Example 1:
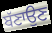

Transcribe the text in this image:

ਬੱਣਾਉਣ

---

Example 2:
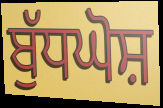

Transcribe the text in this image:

ਬੁੱਧਘੋਸ਼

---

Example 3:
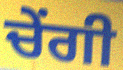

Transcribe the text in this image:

ਚੇਂਗੀ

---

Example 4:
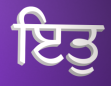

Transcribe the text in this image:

ਇਤੁ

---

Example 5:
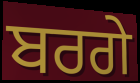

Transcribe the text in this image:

ਬਰਗੇ